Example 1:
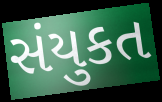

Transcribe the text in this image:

સંયુકત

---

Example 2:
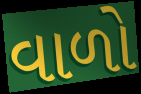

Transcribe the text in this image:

વાળો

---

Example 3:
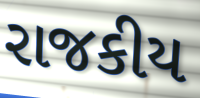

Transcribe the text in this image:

રાજકીય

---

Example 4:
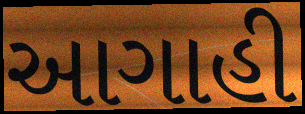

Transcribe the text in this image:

આગાહી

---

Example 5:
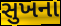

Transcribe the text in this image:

સુખના